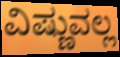
ವಿಷ್ಣುವಲ್ಲ